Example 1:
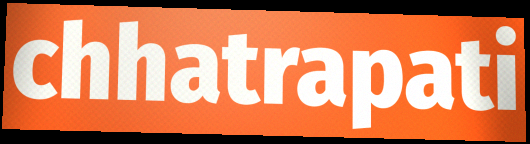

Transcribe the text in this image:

chhatrapati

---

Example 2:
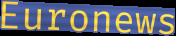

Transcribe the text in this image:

Euronews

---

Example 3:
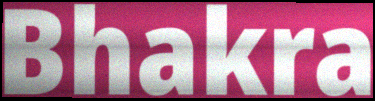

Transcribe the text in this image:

Bhakra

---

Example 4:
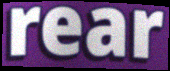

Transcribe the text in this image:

rear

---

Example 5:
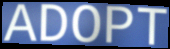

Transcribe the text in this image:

ADOPT